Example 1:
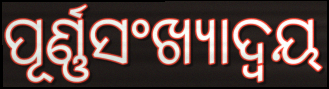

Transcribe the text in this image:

ପୂର୍ଣ୍ଣସଂଖ୍ୟାଦ୍ଵୟ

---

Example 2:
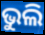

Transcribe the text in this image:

ଭୁଲି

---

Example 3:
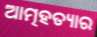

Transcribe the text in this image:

ଆତ୍ମହତ୍ୟାର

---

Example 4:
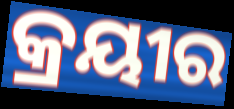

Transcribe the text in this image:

କ୍ରୟୀର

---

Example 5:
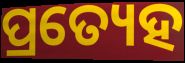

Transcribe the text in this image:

ପ୍ରତ୍ୟେହ